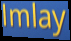
Imlay